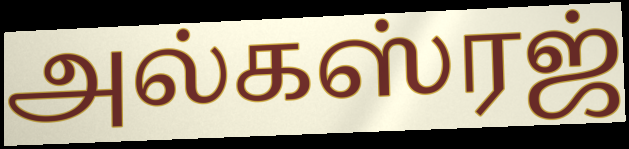
அல்கஸ்ரஜ்